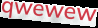
qwewew